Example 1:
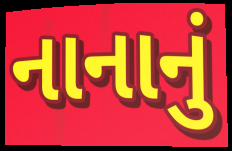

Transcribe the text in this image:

નાનાનું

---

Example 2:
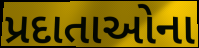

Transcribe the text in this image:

પ્રદાતાઓના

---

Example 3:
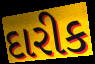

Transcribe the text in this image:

દારીક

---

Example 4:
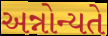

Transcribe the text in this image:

અન્નોન્યતે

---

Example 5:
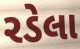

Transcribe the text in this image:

રડેલા